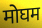
मोघम